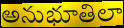
అనుభూతిలా